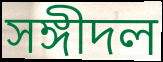
সঙ্গীদল